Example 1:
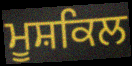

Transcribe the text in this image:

ਮੂਸ਼ਕਿਲ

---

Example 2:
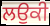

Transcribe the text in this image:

ਲਉਕੀ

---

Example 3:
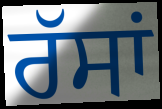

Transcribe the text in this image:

ਰੱਸਾਂ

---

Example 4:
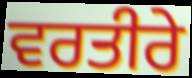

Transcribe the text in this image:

ਵਰਤੀਰੇ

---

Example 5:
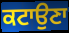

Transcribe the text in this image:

ਕਟਾਉਣਾ